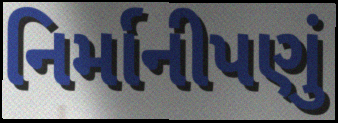
નિર્માનીપણું